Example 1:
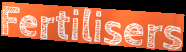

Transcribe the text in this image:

Fertilisers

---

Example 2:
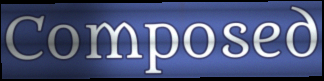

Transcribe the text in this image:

Composed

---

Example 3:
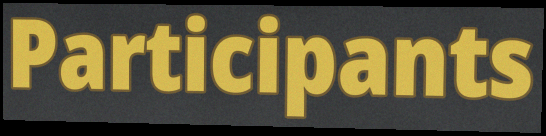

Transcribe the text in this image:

Participants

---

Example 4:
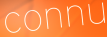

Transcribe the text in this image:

connu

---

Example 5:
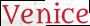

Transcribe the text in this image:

Venice